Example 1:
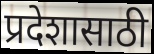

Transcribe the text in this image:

प्रदेशासाठी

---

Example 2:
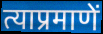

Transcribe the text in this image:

त्याप्रमाणें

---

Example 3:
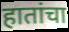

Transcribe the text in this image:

हातांचा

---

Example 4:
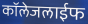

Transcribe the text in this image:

कॉलेजलाईफ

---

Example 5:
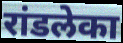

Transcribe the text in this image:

रांडलेका